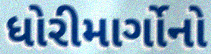
ધોરીમાર્ગોનો